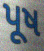
પૂષ